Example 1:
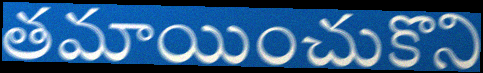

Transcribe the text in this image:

తమాయించుకొని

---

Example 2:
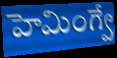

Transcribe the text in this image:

హెమింగ్వే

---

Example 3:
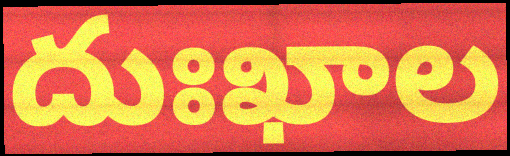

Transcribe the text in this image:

దుఃఖాల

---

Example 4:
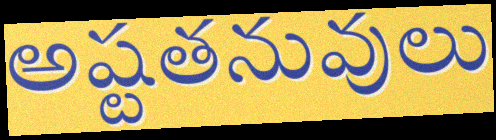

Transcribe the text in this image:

అష్టతనువులు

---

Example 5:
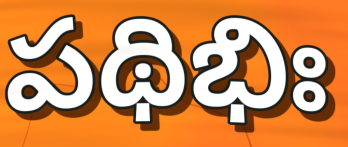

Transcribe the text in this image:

పథిభిః